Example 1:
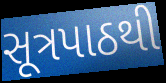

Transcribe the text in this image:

સૂત્રપાઠથી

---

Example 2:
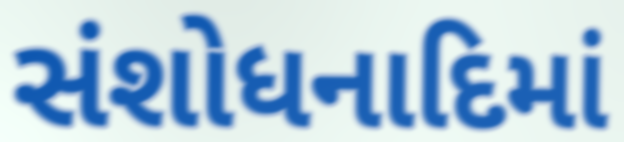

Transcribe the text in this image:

સંશોધનાદિમાં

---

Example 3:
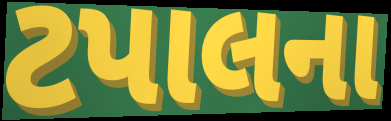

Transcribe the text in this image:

ટપાલના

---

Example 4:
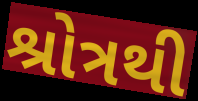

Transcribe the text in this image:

શ્રોત્રથી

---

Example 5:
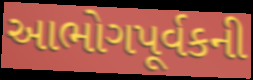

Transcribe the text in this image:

આભોગપૂર્વકની